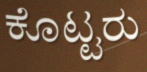
ಕೊಟ್ಟರು